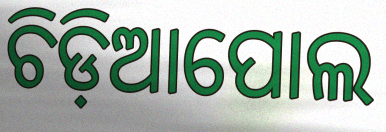
ଚିଡ଼ିଆପୋଲ